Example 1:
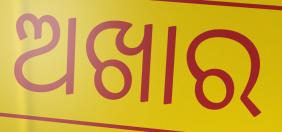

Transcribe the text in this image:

ଅଖାର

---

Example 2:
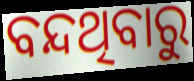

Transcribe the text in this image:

ବନ୍ଦଥିବାରୁ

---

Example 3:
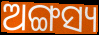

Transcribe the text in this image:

ଅଙ୍ଗସ୍ୟ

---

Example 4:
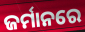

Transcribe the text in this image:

ଜର୍ମାନରେ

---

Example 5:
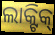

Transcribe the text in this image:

ଲାକ୍ଟିକ୍